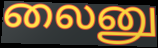
லைனு